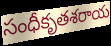
సంధీకృతశరాయ